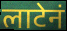
लाटेनं